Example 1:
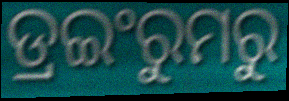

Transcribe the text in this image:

ଡ୍ରଇଂରୁମରୁ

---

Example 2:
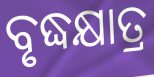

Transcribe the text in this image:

ବୃଦ୍ଧକ୍ଷାତ୍ର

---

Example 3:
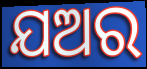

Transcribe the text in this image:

ଯଅର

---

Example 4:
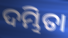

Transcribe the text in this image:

ଦମ୍ଭିତା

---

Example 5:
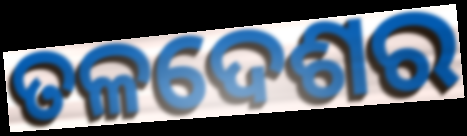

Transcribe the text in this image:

ତଳଦେଶର